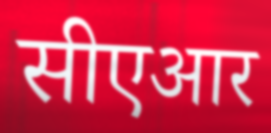
सीएआर